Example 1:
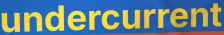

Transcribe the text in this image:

undercurrent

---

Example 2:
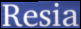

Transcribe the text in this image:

Resia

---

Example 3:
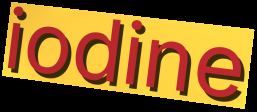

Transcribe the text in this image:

iodine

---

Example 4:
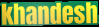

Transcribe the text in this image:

khandesh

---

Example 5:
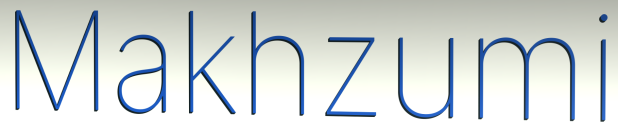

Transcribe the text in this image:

Makhzumi